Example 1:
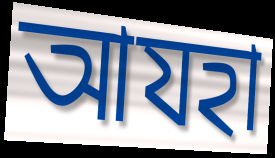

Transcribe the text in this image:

আযহা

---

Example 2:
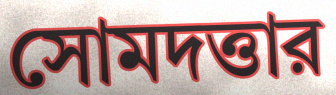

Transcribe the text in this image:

সোমদত্তার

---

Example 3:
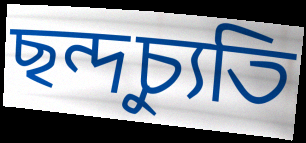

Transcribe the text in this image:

ছন্দচ্যুতি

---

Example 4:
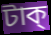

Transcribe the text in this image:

টাক্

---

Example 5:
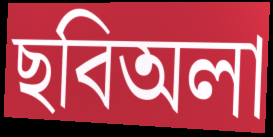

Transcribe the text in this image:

ছবিঅলা